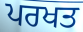
ਪਰਖਤ